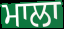
ਮਾਲਾ